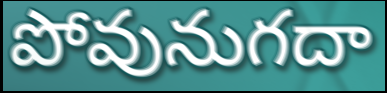
పోవునుగదా